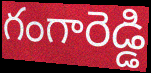
గంగారెడ్డి